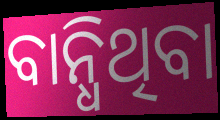
ବାନ୍ଧିଥିବା